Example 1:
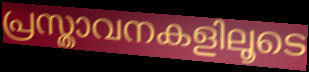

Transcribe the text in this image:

പ്രസ്താവനകളിലൂടെ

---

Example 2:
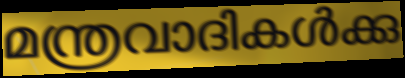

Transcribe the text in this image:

മന്ത്രവാദികൾക്കു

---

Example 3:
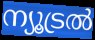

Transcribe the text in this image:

ന്യൂട്രൽ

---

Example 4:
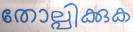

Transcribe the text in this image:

തോല്പിക്കുക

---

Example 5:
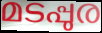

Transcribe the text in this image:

മടപ്പുര